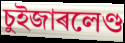
চুইজাৰলেণ্ড